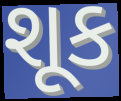
શૂક